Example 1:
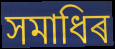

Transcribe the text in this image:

সমাধিৰ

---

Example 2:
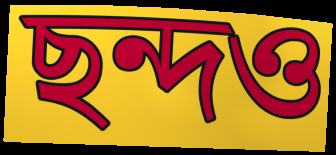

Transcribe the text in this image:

ছন্দও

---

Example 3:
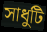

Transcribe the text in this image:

সাধুটি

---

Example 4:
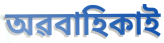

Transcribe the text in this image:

অৱবাহিকাই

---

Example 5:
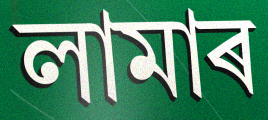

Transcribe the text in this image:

লামাৰ